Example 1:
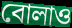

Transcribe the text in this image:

বোলাও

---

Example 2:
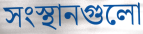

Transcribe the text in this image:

সংস্থানগুলো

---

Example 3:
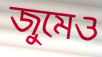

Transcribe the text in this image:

জুমেও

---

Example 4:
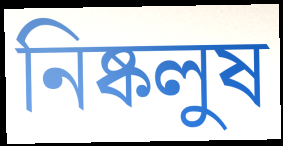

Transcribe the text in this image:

নিষ্কলুষ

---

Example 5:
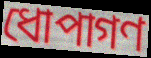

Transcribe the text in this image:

ধোপাগণ